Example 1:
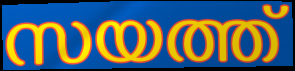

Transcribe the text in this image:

സയത്ത്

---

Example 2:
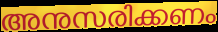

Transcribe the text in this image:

അനുസരിക്കണം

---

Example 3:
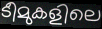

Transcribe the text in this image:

ടീമുകളിലെ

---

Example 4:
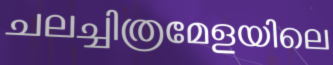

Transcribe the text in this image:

ചലച്ചിത്രമേളയിലെ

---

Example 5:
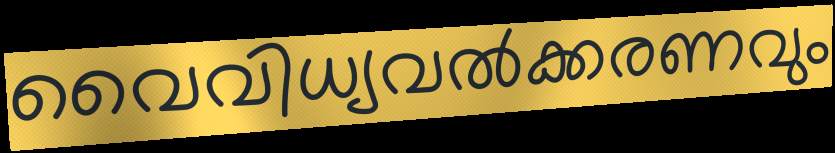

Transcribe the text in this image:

വൈവിധ്യവൽക്കരണവും